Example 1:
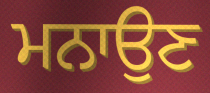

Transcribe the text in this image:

ਮਨਾਉਣ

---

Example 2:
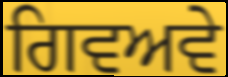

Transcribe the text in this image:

ਗਿਵਅਵੇ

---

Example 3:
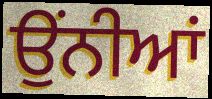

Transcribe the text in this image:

ਉੰਨੀਆਂ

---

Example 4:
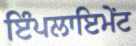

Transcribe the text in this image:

ਇੰਪਲਾਇਮੇਂਟ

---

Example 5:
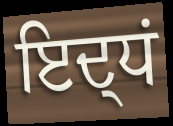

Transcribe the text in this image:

ਇਦ੍ਧਂ